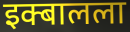
इक्बालला